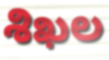
శిఖల